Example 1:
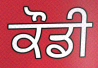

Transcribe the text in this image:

ਕੌਡੀ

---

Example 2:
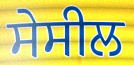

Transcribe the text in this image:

ਸੇਸੀਲ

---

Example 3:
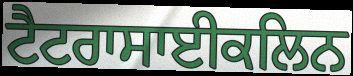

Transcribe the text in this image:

ਟੈਟਰਾਸਾਈਕਲਿਨ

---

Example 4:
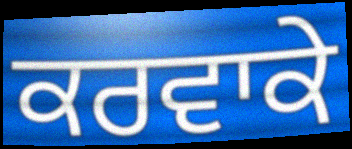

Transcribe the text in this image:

ਕਰਵਾਕੇ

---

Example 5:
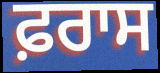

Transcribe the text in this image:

ਫ਼ਰਾਸ